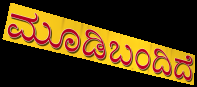
ಮೂಡಿಬಂದಿದೆ